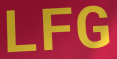
LFG